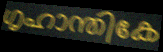
ഗൃഹാന്തികേ